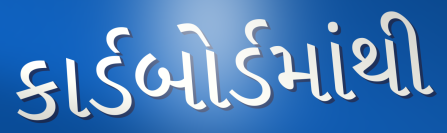
કાર્ડબોર્ડમાંથી